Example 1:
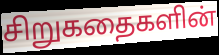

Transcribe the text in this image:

சிறுகதைகளின்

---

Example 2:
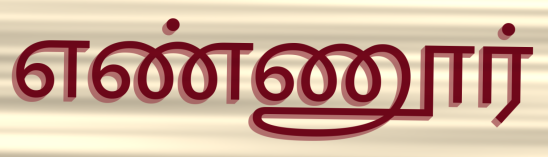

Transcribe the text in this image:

எண்ணூர்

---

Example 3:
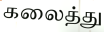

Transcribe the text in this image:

கலைத்து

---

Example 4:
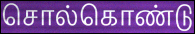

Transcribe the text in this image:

சொல்கொண்டு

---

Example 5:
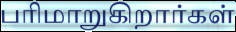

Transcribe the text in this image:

பரிமாறுகிறார்கள்